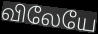
விலேயே